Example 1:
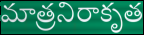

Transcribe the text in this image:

మాత్రనిరాకృత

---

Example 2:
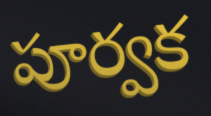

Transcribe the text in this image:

పూర్వక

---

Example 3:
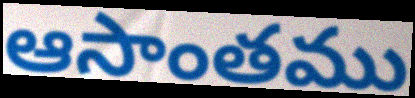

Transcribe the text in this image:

ఆసాంతము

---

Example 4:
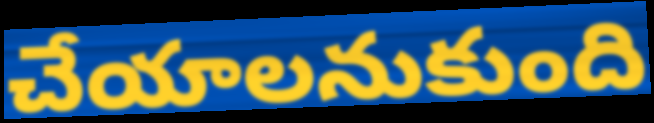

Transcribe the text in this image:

చేయాలనుకుంది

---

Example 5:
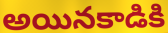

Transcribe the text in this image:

అయినకాడికి